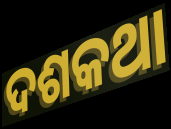
ଦଶକଥା